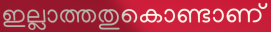
ഇല്ലാത്തതുകൊണ്ടാണ്